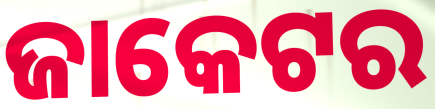
ଜାକେଟର